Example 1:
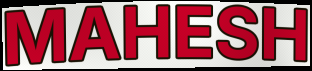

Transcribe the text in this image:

MAHESH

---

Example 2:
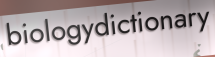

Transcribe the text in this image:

biologydictionary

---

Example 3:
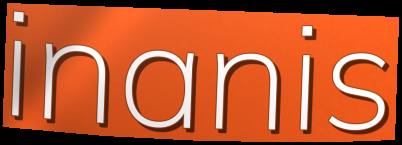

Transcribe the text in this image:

inanis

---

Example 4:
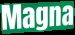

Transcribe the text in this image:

Magna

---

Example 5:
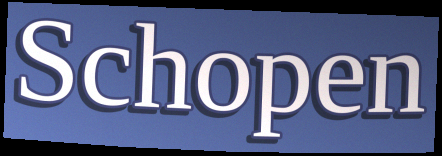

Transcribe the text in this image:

Schopen